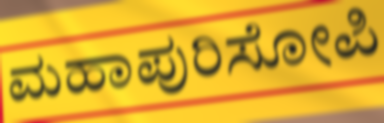
ಮಹಾಪುರಿಸೋಪಿ